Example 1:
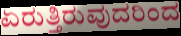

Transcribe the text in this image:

ಏರುತ್ತಿರುವುದರಿಂದ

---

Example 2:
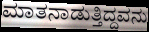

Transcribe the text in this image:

ಮಾತನಾಡುತ್ತಿದ್ದವನು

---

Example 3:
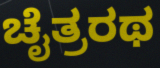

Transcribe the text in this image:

ಚೈತ್ರರಥ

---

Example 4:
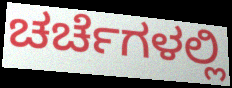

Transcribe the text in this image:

ಚರ್ಚೆಗಳಲ್ಲಿ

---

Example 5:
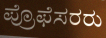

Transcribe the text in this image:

ಪ್ರೊಫೆಸರರು